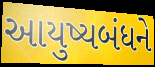
આયુષ્યબંધને